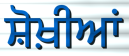
ਸ਼ੋਖ਼ੀਆਂ